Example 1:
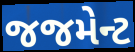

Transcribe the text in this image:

જજમેન્ટ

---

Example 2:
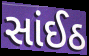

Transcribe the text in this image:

સાંઈઠ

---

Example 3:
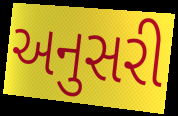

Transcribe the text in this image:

અનુસરી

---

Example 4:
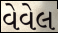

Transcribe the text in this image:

વેવેલ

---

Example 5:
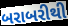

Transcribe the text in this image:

બરાબરીથી